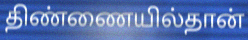
திண்ணையில்தான்